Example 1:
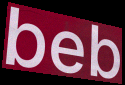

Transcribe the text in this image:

beb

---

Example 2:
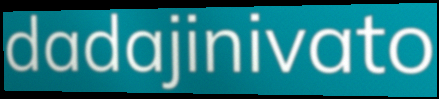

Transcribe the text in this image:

dadajinivato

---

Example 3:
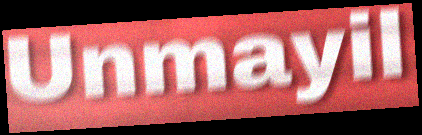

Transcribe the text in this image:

Unmayil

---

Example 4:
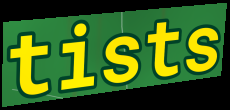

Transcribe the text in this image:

tists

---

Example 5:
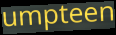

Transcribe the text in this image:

umpteen